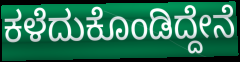
ಕಳೆದುಕೊಂಡಿದ್ದೇನೆ